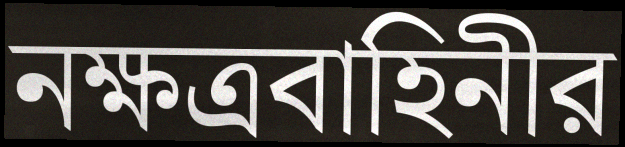
নক্ষত্রবাহিনীর